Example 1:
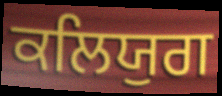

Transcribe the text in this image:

ਕਲਿਯੁਗ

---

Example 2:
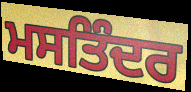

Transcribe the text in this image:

ਮਸਤਿੰਦਰ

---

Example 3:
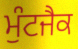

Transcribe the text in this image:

ਮੁੰਟਜੈਕ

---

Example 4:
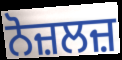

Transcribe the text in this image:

ਨੋਜ਼ਲਜ਼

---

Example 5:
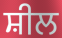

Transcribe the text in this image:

ਸ਼ੀਲ